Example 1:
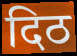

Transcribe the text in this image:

दिठ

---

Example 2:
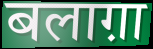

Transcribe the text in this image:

बलाग़ा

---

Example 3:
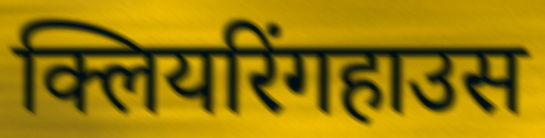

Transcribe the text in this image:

क्लियरिंगहाउस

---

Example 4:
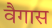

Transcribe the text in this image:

वैगास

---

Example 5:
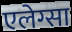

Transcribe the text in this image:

एलेग्सा